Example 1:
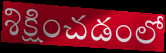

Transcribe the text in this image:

శిక్షించడంలో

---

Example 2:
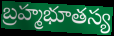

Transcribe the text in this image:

బ్రహ్మభూతస్య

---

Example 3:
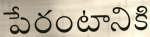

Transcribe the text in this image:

పేరంటానికి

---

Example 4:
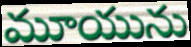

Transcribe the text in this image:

మూయును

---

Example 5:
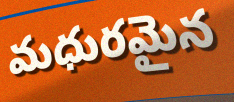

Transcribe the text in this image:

మధురమైన